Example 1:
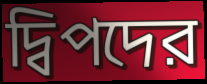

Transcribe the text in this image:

দ্বিপদের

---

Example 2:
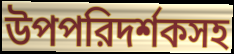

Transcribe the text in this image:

উপপরিদর্শকসহ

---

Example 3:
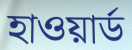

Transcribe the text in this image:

হাওয়ার্ড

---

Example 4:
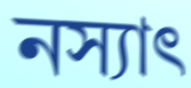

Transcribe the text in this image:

নস্যাৎ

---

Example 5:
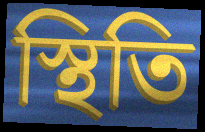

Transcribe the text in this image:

স্থিতি